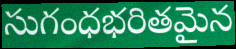
సుగంధభరితమైన